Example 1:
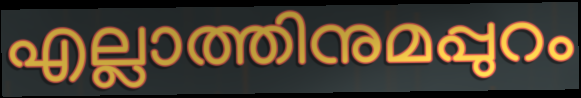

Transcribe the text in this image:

എല്ലാത്തിനുമപ്പുറം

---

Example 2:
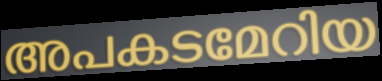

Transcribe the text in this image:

അപകടമേറിയ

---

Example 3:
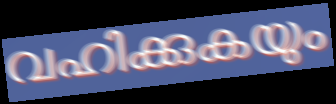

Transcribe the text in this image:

വഹിക്കുകയും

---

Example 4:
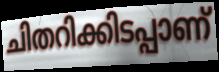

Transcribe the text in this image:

ചിതറിക്കിടപ്പാണ്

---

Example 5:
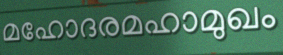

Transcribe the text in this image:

മഹോദരമഹാമുഖം